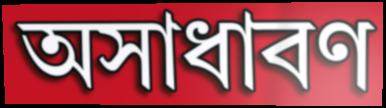
অসাধাবণ